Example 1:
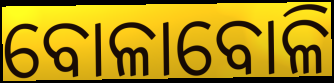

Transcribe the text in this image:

ବୋଳାବୋଳି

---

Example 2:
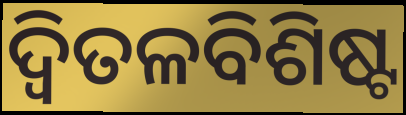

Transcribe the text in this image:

ଦ୍ୱିତଳବିଶିଷ୍ଟ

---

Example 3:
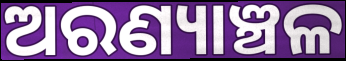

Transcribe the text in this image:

ଅରଣ୍ୟାଞ୍ଚଳ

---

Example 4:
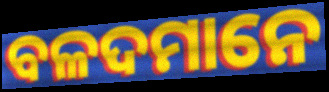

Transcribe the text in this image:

ବଳଦମାନେ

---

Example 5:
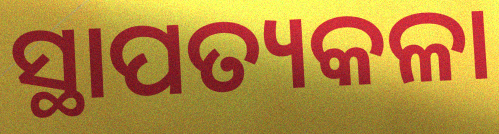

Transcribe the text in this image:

ସ୍ଥାପତ୍ୟକଳା